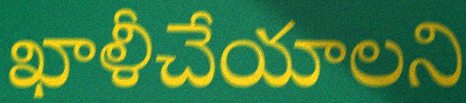
ఖాళీచేయాలని